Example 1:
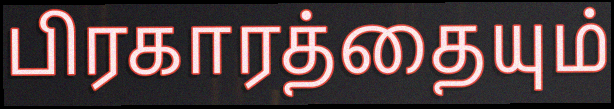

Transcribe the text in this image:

பிரகாரத்தையும்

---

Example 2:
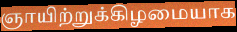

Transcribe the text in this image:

ஞாயிற்றுக்கிழமையாக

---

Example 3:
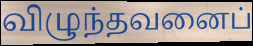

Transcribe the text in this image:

விழுந்தவனைப்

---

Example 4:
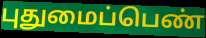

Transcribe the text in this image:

புதுமைப்பெண்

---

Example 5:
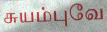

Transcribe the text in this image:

சுயம்புவே